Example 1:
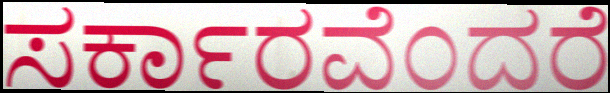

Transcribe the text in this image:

ಸರ್ಕಾರವೆಂದರೆ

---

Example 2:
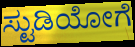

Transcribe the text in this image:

ಸ್ಟುಡಿಯೋಗೆ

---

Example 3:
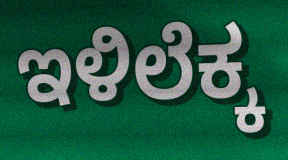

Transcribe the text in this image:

ಇಳಿಲೆಕ್ಕ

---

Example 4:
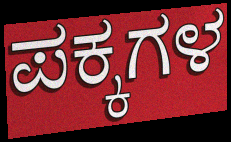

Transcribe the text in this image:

ಪಕ್ಕಗಳ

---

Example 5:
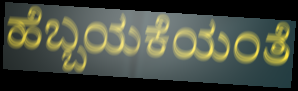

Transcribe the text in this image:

ಹೆಬ್ಬಯಕೆಯಂತೆ